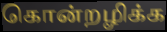
கொன்றழிக்க